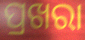
ପ୍ରଖରା